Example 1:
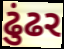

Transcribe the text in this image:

ઢુંઢર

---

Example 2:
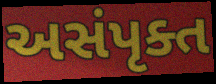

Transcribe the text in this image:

અસંપૃક્ત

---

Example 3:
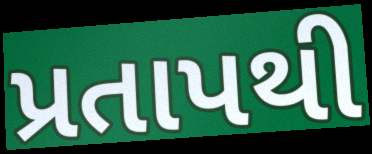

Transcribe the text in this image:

પ્રતાપથી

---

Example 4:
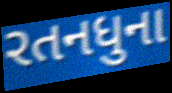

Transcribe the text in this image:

રતનધુના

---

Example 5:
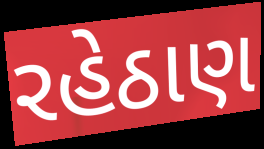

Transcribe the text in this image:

રહેઠાણ